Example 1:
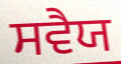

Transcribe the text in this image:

ਸਵੈਯ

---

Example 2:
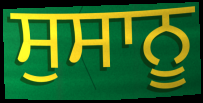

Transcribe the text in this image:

ਸੁਸਾਨੂ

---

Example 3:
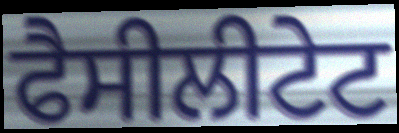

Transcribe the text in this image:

ਫੈਸੀਲੀਟੇਟ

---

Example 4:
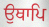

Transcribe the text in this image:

ਉਥਾਪਿ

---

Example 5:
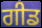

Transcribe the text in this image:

ਗੀਡ